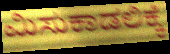
ಮಿಸುಕಾಡಲಿಕ್ಕೆ